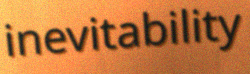
inevitability